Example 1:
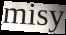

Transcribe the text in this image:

misy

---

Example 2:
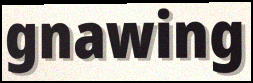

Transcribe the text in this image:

gnawing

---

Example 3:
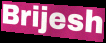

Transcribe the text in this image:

Brijesh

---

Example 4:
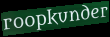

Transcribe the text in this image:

roopkunder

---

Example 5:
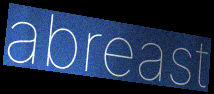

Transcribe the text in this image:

abreast